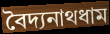
বৈদ্যনাথধাম